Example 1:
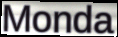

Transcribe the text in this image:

Monda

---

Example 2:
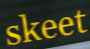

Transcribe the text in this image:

skeet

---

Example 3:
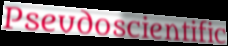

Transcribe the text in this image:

Pseudoscientific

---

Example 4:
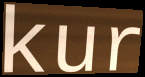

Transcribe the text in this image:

kur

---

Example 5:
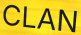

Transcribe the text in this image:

CLAN